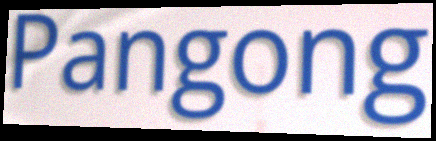
Pangong